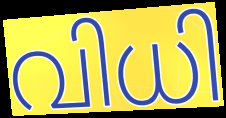
വിധി